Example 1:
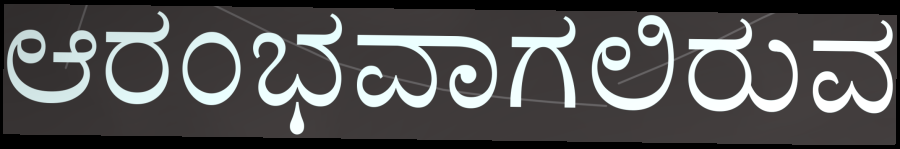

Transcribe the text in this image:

ಆರಂಭವಾಗಲಿರುವ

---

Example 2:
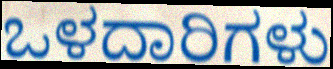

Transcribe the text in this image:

ಒಳದಾರಿಗಳು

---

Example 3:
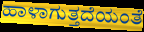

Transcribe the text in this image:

ಹಾಳಾಗುತ್ತದೆಯಂತೆ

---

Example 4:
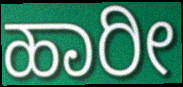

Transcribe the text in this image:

ಹಾರೀ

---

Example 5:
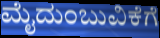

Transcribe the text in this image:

ಮೈದುಂಬುವಿಕೆಗೆ